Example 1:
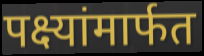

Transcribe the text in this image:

पक्ष्यांमार्फत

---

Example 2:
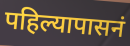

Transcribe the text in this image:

पहिल्यापासनं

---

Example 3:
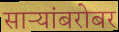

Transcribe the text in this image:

साऱ्यांबरोबर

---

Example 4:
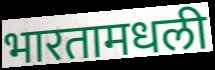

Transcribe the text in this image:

भारतामधली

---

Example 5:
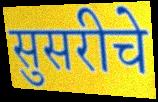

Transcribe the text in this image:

सुसरीचे